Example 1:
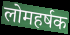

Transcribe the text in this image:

लोमहर्षक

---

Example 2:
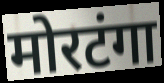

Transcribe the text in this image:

मोरटंगा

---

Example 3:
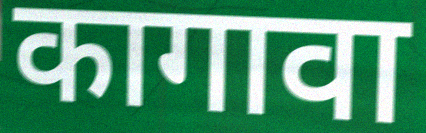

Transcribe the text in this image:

कागावा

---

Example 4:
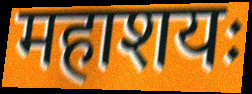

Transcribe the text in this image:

महाशयः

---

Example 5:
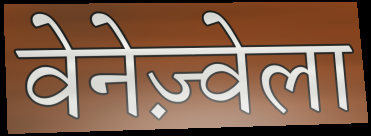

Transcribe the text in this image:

वेनेज़्वेला